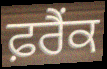
ਫ਼ਰੈਂਕ